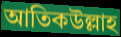
আতিকউল্লাহ